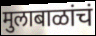
मुलाबाळांचं